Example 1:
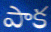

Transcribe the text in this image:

పాక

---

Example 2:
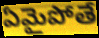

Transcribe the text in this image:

ఏమైపోతే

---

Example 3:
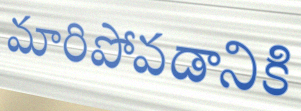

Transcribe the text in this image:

మారిపోవడానికి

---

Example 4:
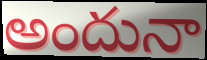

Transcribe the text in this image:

అందునా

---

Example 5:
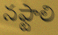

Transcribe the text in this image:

నఫ్టాలి